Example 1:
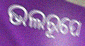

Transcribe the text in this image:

ଭଲରୂପେ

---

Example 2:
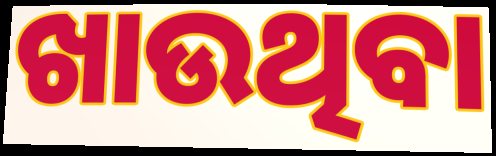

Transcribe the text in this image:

ଖାଉଥିବା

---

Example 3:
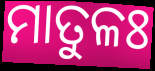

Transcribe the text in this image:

ମାତୁଳଃ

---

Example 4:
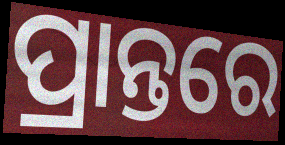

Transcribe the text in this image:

ପ୍ରାନ୍ତରେ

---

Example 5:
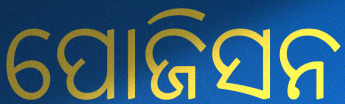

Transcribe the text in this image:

ପୋଜିସନ